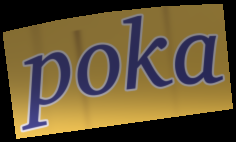
poka